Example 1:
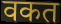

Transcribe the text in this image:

वकत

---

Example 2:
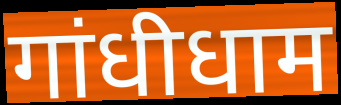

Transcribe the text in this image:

गांधीधाम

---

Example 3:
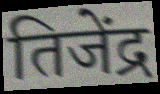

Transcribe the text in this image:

तिजेंद्र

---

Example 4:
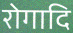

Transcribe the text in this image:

रोगादि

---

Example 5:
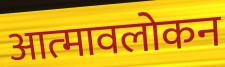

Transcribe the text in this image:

आत्‍मावलोकन